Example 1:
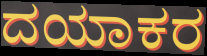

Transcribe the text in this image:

ದಯಾಕರ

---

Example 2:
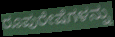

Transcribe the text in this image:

ರೂಪುರೇಷೆಗಳನ್ನು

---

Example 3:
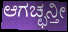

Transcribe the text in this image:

ಆಗಚ್ಛನ್ತೀ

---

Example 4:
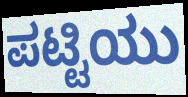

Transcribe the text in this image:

ಪಟ್ಟಿಯು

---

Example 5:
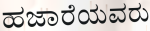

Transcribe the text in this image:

ಹಜಾರೆಯವರು